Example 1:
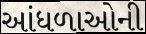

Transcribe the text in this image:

આંધળાઓની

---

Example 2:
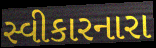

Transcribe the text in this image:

સ્વીકારનારા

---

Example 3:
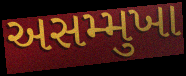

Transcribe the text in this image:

અસમ્મુખા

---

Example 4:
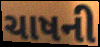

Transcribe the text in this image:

ચાષની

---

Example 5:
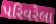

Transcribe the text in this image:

પરિવરેલા